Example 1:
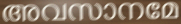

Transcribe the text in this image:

അവസാനമേ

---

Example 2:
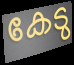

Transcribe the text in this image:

കേടു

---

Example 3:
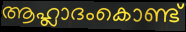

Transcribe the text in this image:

ആഹ്ലാദംകൊണ്ട്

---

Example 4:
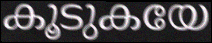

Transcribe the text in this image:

കൂടുകയേ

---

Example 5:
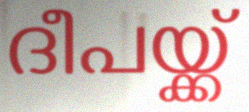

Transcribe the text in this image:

ദീപയ്ക്ക്